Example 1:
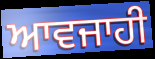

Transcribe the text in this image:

ਆਵਜਾਹੀ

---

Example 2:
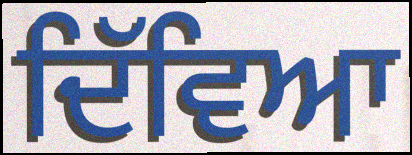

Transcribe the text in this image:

ਦਿੱਵਿਆ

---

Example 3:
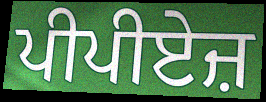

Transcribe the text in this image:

ਪੀਪੀਏਜ਼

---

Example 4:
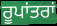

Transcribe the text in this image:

ਰੂਪਾਂਤਰਾਂ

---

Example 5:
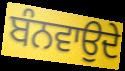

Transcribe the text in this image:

ਬੰਨਵਾਉਦੇ